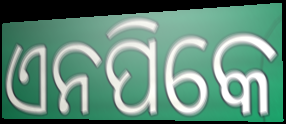
ଏନପିକେ